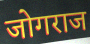
जोगराज